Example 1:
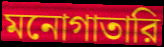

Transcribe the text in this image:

মনোগাতারি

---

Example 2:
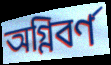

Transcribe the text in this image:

অগ্নিবর্ণ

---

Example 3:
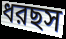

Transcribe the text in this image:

ধরছস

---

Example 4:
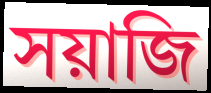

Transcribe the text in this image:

সয়াজি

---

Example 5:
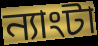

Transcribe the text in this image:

ন্যাংটা